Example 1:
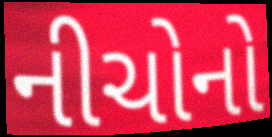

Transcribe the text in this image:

નીચોનો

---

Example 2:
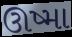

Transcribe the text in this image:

ઊષ્મા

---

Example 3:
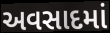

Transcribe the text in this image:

અવસાદમાં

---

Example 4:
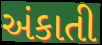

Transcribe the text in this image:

અંકાતી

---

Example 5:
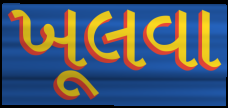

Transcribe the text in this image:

ખૂલવા